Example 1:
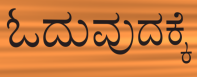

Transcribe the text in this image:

ಓದುವುದಕ್ಕೆ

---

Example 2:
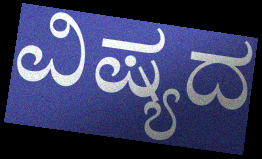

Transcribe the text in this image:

ವಿಷ್ಯದ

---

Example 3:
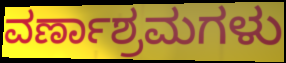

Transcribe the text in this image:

ವರ್ಣಾಶ್ರಮಗಳು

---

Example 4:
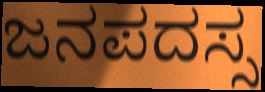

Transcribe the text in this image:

ಜನಪದಸ್ಸ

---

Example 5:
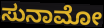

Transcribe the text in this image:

ಸುನಾಮೋ